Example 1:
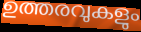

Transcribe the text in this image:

ഉത്തരവുകളും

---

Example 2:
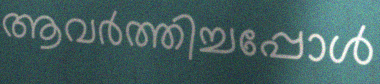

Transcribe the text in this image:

ആവർത്തിച്ചപ്പോൾ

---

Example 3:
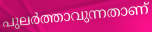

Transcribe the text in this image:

പുലർത്താവുന്നതാണ്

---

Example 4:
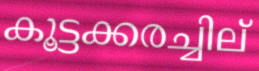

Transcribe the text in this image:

കൂട്ടക്കരച്ചില്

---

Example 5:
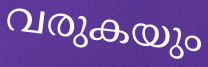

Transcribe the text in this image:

വരുകയും